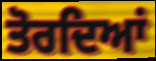
ਤੋਰਦਿਆਂ